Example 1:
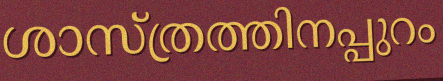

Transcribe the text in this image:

ശാസ്ത്രത്തിനപ്പുറം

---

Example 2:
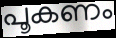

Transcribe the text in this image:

പൂകണം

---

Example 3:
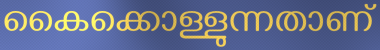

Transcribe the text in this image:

കൈക്കൊള്ളുന്നതാണ്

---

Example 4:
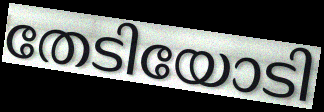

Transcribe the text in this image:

തേടിയോടി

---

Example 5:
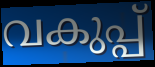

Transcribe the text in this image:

വകുപ്പ്